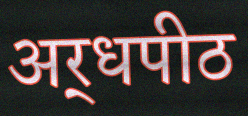
अर्धपीठ